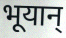
भूयान्